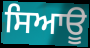
ਸਿਆਊ